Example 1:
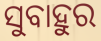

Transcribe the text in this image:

ସୁବାହୁର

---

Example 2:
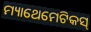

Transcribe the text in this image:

ମ୍ୟାଥେମେଟିକସ୍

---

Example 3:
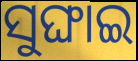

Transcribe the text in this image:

ସୁଙ୍ଘାଇ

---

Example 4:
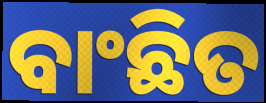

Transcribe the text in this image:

ବାଂଛିତ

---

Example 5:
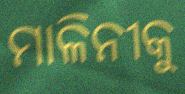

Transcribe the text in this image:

ମାଳିନୀକୁ